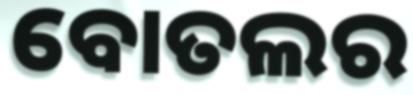
ବୋତଲର